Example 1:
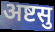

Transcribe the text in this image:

अष्टसु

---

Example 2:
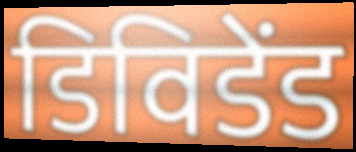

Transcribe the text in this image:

डिविडेंड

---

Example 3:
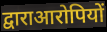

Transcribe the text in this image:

द्वाराआरोपियों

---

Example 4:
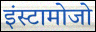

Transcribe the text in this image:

इंस्टामोजो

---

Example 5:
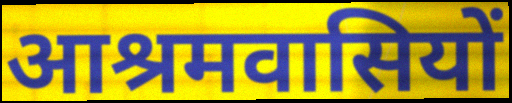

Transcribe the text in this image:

आश्रमवासियों